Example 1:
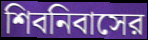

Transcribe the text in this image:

শিবনিবাসের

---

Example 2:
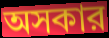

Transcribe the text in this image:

অসকার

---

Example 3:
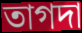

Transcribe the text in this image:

তাগদা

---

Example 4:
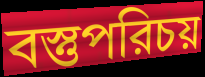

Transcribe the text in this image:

বস্তুপরিচয়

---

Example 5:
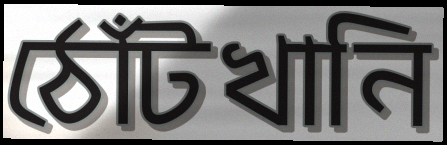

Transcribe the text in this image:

ঠোঁটখানি